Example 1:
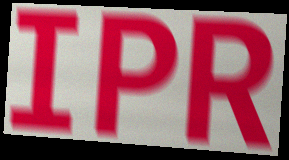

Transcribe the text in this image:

IPR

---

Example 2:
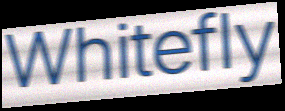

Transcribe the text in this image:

Whitefly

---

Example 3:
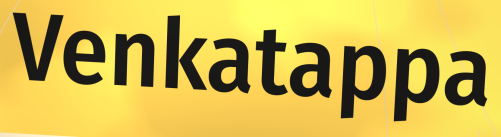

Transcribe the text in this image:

Venkatappa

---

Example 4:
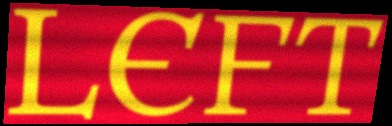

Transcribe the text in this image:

LEFT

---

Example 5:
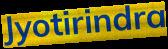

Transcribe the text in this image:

Jyotirindra